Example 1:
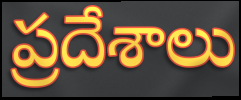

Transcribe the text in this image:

ప్రదేశాలు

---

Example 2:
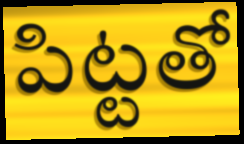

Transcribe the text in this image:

పిట్టతో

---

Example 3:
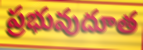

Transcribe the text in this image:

ప్రభువుదూత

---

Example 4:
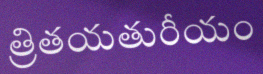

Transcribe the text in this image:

త్రితయతురీయం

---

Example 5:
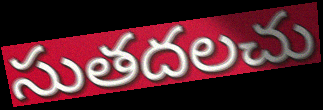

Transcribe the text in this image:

సుతదలచు